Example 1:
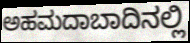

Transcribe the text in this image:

ಅಹಮದಾಬಾದಿನಲ್ಲಿ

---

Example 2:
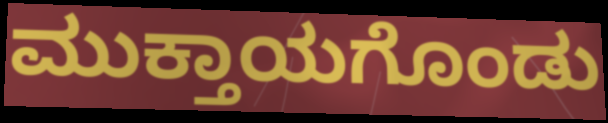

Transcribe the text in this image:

ಮುಕ್ತಾಯಗೊಂಡು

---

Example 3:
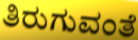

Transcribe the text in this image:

ತಿರುಗುವಂತೆ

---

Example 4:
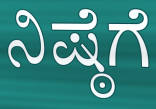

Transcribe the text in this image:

ನಿಷ್ಠೆಗೆ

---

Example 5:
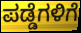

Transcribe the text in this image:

ಪಡ್ಡೆಗಳಿಗೆ